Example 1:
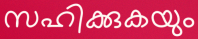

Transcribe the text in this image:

സഹിക്കുകയും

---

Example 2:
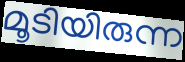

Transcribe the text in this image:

മൂടിയിരുന്ന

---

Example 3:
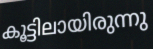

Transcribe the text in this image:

കൂട്ടിലായിരുന്നു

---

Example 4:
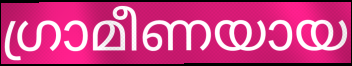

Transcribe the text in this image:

ഗ്രാമീണയായ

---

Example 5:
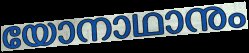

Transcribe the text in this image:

യോനാഥാനും